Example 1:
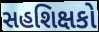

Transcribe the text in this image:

સહશિક્ષકો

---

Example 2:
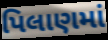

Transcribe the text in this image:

પિલાણમાં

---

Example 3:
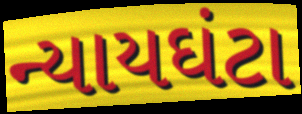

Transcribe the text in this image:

ન્યાયઘંટા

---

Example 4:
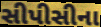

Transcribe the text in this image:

સીપીસીના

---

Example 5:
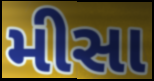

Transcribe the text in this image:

મીસા